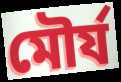
মৌৰ্য